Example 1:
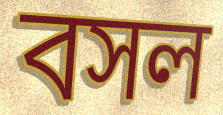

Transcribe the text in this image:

বসল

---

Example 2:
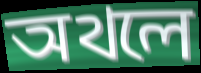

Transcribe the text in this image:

অথলে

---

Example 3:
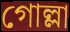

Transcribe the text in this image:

গোল্লা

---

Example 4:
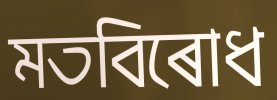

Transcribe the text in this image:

মতবিৰোধ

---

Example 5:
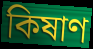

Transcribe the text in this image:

কিষাণ